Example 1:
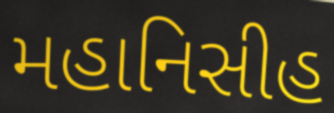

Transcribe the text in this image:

મહાનિસીહ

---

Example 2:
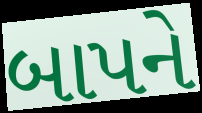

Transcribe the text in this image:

બાપને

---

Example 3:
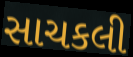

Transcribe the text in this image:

સાચકલી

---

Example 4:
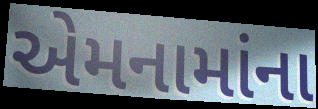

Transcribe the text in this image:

એમનામાંના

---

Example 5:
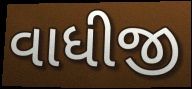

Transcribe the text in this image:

વાધીજી